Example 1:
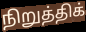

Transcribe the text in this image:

நிறுத்திக்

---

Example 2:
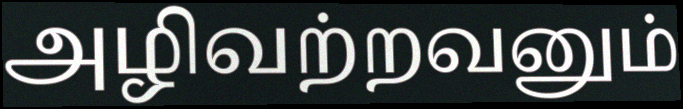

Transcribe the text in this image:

அழிவற்றவனும்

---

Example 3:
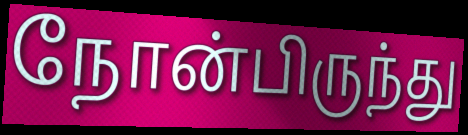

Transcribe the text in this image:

நோன்பிருந்து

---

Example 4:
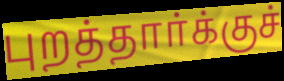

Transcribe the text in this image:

புறத்தார்க்குச்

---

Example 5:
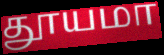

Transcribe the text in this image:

தூயமா